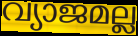
വ്യാജമല്ല